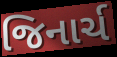
જિનાર્ચ